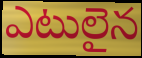
ఎటులైన